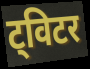
ट्विटर